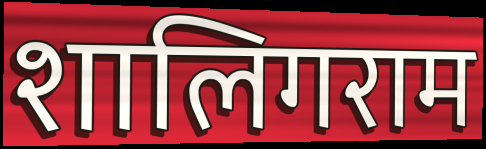
शालिगराम